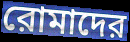
রোমাদের